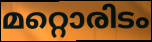
മറ്റൊരിടം